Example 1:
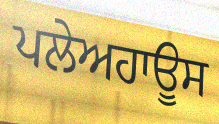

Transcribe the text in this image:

ਪਲੇਅਹਾਊਸ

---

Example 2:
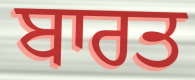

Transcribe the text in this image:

ਬਾਰਤ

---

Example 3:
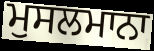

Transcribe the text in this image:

ਮੁਸਲਮਾਨਾ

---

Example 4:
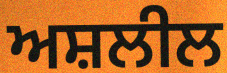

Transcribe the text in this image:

ਅਸ਼ਲੀਲ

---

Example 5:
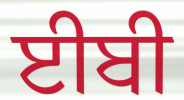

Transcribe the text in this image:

ਈਬੀ